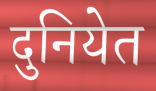
दुनियेत